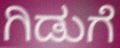
ಗಿಡುಗೆ